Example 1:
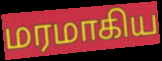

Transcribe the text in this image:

மரமாகிய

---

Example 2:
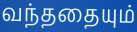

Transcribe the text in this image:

வந்ததையும்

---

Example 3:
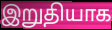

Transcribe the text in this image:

இறுதியாக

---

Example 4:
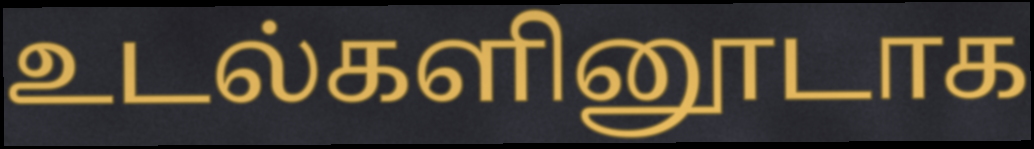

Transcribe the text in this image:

உடல்களினூடாக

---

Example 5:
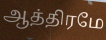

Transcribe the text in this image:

ஆத்திரமே